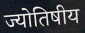
ज्योतिषीय